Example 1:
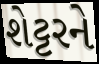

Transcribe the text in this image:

શેટ્ટરને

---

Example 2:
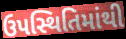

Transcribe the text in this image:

ઉપસ્થિતિમાંથી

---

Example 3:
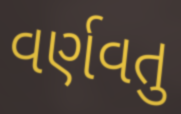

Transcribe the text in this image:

વર્ણવતુ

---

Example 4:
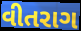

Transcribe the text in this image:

વીતરાગ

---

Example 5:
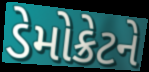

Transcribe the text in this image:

ડેમોક્રેટને